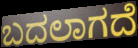
ಬದಲಾಗದೆ